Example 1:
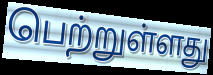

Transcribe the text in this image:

பெற்றுள்ளது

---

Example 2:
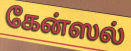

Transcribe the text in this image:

கேன்ஸல்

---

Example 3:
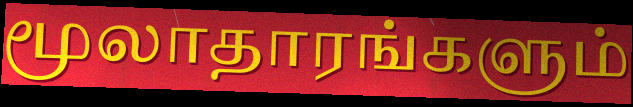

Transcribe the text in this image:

மூலாதாரங்களும்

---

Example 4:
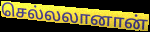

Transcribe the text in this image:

செல்லலானான்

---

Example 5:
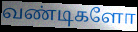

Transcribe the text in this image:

வண்டிகளோ